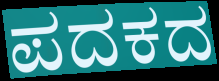
ಪದಕದ